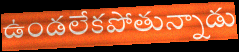
ఉండలేకపోతున్నాడు